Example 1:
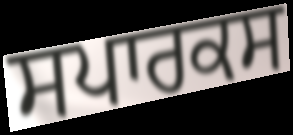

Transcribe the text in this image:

ਸਪਾਰਕਸ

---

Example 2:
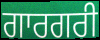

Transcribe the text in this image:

ਗਾਰਗਰੀ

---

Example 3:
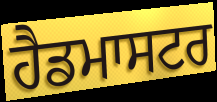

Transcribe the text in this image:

ਹੈਡਮਾਸਟਰ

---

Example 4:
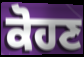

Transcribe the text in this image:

ਕੋਹਣ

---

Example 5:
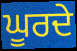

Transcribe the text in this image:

ਘੂਰਦੇ